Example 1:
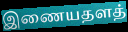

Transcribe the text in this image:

இணையதளத்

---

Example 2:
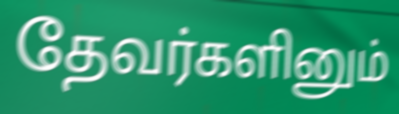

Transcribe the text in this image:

தேவர்களினும்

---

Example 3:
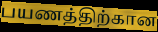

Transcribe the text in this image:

பயணத்திற்கான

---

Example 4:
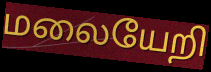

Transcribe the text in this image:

மலையேறி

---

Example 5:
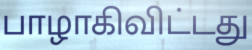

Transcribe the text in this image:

பாழாகிவிட்டது